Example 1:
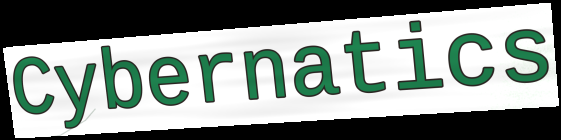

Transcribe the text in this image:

Cybernatics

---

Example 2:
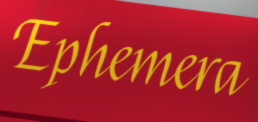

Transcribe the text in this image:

Ephemera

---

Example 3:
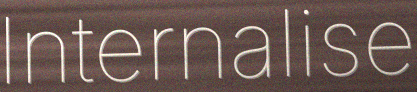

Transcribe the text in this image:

Internalise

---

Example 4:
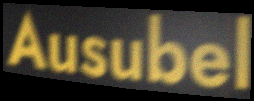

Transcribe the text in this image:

Ausubel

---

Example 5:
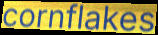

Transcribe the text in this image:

cornflakes